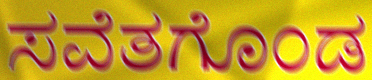
ಸವೆತಗೊಂಡ